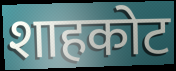
शाहकोट